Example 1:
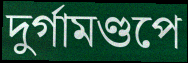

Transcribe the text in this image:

দুর্গামণ্ডপে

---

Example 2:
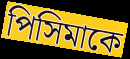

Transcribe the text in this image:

পিসিমাকে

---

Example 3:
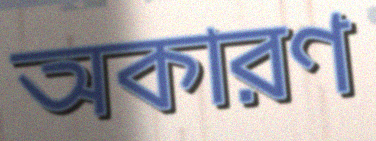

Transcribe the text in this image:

অকারণ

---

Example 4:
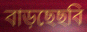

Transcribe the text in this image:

বাড়ছেছবি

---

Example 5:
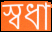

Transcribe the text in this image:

স্বধা